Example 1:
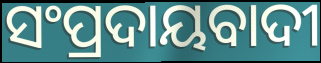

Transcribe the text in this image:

ସଂପ୍ରଦାୟବାଦୀ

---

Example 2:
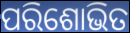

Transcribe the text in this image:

ପରିଶୋଭିତ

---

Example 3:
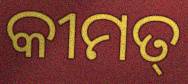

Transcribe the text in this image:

କୀମତ୍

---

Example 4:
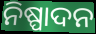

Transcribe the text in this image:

ନିଷ୍ପାଦନ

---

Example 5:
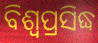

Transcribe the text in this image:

ବିଶ୍ଵପ୍ରସିଦ୍ଧ